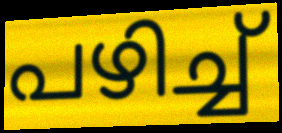
പഴിച്ച്